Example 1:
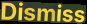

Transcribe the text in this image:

Dismiss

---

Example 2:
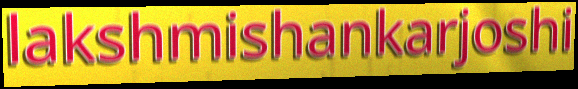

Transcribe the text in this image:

lakshmishankarjoshi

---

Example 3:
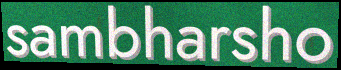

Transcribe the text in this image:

sambharsho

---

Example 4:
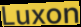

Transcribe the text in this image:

Luxon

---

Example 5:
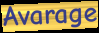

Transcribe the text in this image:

Avarage